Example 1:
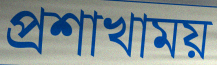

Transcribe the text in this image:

প্রশাখাময়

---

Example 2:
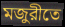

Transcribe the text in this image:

মজুরীতে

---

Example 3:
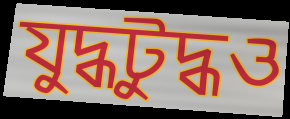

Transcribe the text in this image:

যুদ্ধটুদ্ধও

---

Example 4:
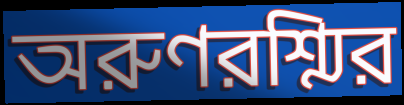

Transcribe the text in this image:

অরুণরশ্মির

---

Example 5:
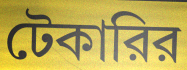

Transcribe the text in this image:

টেকারির